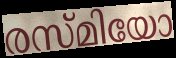
രസ്മിയോ